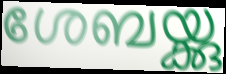
ശേബയ്ക്കു